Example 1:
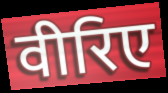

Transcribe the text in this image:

वीरिए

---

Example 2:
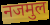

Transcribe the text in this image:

नजमुल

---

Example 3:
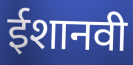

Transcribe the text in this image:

ईशानवी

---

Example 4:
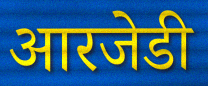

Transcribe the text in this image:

आरजेडी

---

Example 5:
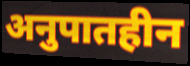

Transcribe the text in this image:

अनुपातहीन